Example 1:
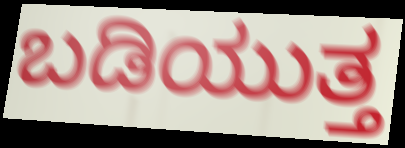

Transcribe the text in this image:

ಬಡಿಯುತ್ತ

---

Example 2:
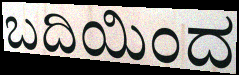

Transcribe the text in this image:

ಬದಿಯಿಂದ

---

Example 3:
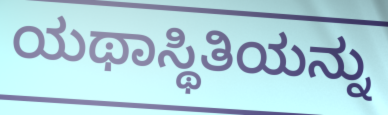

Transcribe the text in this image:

ಯಥಾಸ್ಥಿತಿಯನ್ನು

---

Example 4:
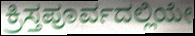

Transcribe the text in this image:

ಕ್ರಿಸ್ತಪೂರ್ವದಲ್ಲಿಯೇ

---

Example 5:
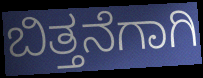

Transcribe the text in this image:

ಬಿತ್ತನೆಗಾಗಿ